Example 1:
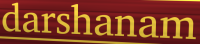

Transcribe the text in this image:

darshanam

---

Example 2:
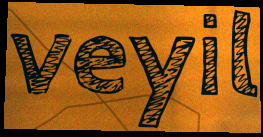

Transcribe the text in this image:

veyil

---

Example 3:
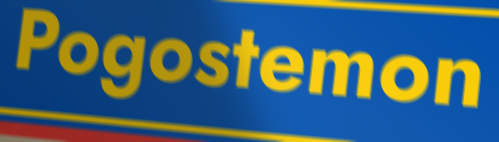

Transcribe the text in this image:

Pogostemon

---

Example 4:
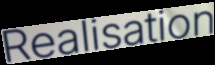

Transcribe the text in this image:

Realisation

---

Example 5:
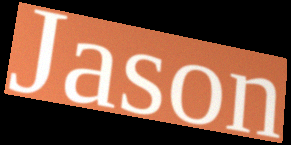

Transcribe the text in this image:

Jason